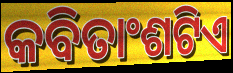
କବିତାଂଶଟିଏ